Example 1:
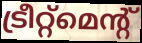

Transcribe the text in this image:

ട്രീറ്റ്മെന്റ്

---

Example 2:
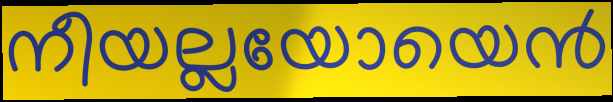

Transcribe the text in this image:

നീയല്ലയോയെൻ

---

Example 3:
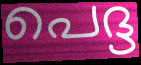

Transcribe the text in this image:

പെദ്ദ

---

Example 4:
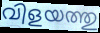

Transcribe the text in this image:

വിളയത്തു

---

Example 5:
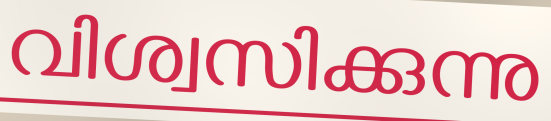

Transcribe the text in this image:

വിശ്വസിക്കുന്നു